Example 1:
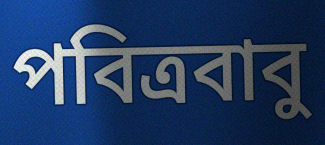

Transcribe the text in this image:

পবিত্রবাবু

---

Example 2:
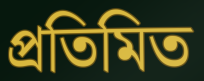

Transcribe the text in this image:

প্রতিমিত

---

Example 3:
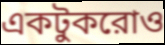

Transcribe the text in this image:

একটুকরোও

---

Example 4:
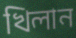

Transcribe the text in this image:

খিলান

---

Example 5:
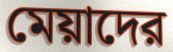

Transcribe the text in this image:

মেয়াদের